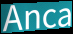
Anca